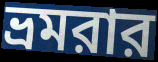
ভ্রমরার